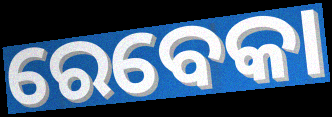
ରେବେକା